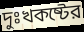
দুঃখকষ্টের